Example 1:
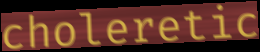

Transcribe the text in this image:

choleretic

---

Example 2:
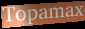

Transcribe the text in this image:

Topamax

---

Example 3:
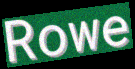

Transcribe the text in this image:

Rowe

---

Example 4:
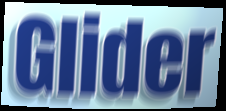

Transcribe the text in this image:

Glider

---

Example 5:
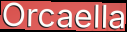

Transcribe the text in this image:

Orcaella